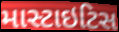
માસ્ટાઇટિસ